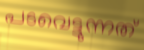
പടവെട്ടുന്നത്